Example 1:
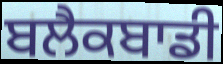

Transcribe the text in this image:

ਬਲੈਕਬਾਡੀ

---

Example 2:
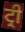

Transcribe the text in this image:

ਟ੍ਰੀ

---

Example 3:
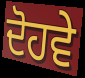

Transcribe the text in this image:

ਦੋਹਵੇ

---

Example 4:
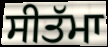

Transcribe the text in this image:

ਸੀਤੱਮਾ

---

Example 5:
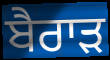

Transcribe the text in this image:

ਬੈਰਾੜ